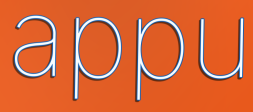
appu